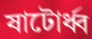
ষাটোর্ধ্ব